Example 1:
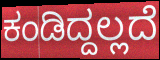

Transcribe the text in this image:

ಕಂಡಿದ್ದಲ್ಲದೆ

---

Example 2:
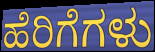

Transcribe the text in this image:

ಹೆರಿಗೆಗಳು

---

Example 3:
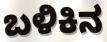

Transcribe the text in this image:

ಬಳಿಕಿನ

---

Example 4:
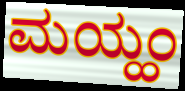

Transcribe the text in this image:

ಮಯ್ಹಂ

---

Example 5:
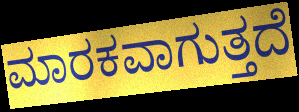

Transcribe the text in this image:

ಮಾರಕವಾಗುತ್ತದೆ